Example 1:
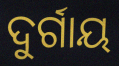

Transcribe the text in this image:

ଦୁର୍ଗାୟ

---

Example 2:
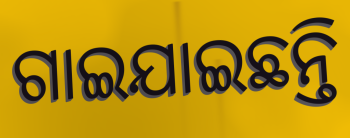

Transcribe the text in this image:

ଗାଇଯାଇଛନ୍ତି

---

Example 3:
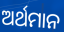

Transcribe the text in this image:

ଅର୍ଥମାନ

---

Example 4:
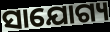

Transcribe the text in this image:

ସାଯୋଗ୍ୟ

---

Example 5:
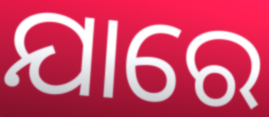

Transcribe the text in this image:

ଯାରେ